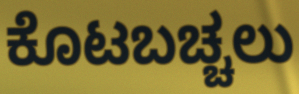
ಕೊಟಬಚ್ಚಲು